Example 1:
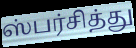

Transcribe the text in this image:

ஸ்பர்சித்து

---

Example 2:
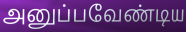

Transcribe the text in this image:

அனுப்பவேண்டிய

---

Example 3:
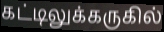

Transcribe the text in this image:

கட்டிலுக்கருகில்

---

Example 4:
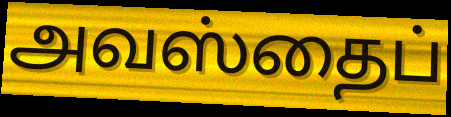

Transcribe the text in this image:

அவஸ்தைப்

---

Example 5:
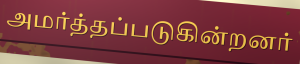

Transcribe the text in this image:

அமர்த்தப்படுகின்றனர்